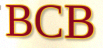
BCB